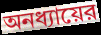
অনধ্যায়ের